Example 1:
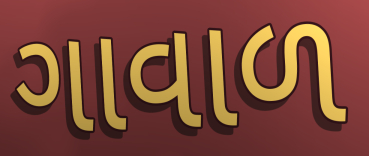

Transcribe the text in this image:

ગાવાળ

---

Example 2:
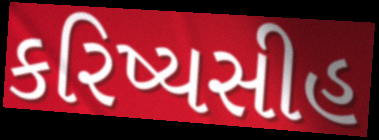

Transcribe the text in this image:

કરિષ્યસીહ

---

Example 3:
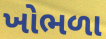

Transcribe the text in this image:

ખોભળા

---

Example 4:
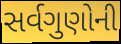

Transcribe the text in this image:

સર્વગુણોની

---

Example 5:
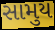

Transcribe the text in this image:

સામુય